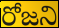
రోజని